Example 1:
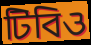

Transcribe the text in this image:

টিবিও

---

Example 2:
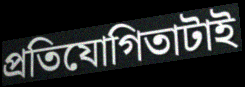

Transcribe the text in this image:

প্রতিযোগিতাটাই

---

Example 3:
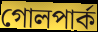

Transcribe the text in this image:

গোলপার্ক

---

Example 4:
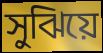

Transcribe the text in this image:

সুঝিয়ে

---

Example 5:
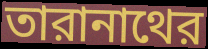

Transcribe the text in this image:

তারানাথের